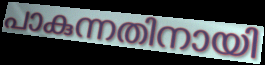
പാകുന്നതിനായി